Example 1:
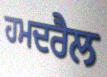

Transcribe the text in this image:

ਹਮਦਰੈਲ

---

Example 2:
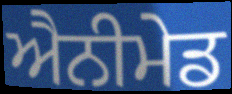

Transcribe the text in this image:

ਐਨੀਮੇਡ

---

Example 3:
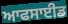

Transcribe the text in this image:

ਆਫਸਾਈਡ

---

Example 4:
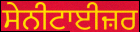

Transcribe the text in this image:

ਸੇਨੀਟਾਈਜ਼ਰ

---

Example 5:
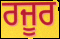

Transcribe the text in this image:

ਰਜੂਰ